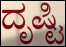
ದೃಷ್ಟಿ